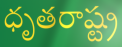
ధృతరాష్ట్ర